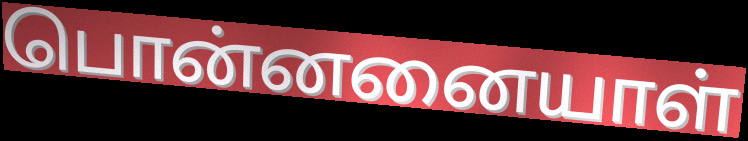
பொன்னனையாள்